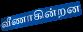
வீணாகின்றன